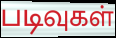
படிவுகள்